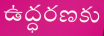
ఉద్ధరణకు